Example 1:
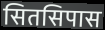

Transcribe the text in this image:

सितसिपास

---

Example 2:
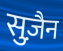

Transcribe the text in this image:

सुज़ैन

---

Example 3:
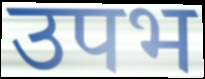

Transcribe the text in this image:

उपभ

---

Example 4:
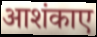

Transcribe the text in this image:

आशंकाए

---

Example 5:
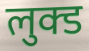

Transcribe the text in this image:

लुक्ड